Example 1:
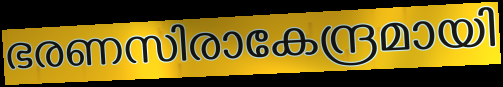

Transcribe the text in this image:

ഭരണസിരാകേന്ദ്രമായി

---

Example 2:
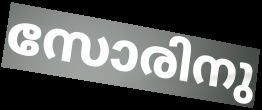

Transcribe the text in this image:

സോരിനു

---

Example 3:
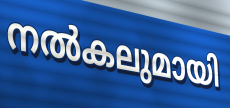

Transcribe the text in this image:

നൽകലുമായി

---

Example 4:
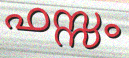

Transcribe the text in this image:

ഫസ്സം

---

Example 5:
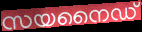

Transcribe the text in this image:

സയനൈഡ്